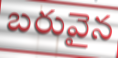
బరువైన